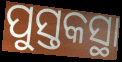
ପୁସ୍ତକସ୍ଥା